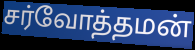
சர்வோத்தமன்